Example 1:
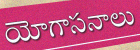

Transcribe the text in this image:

యోగాసనాలు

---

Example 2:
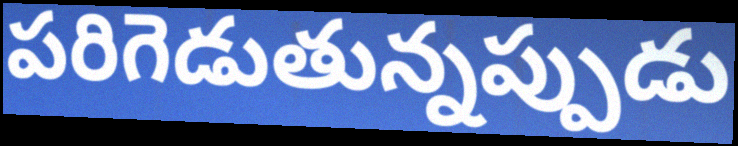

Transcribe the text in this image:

పరిగెడుతున్నప్పుడు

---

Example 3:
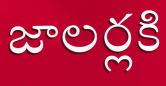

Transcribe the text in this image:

జాలర్లకి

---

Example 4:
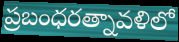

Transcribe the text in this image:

ప్రబంధరత్నావళిలో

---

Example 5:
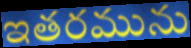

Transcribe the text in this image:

ఇతరమును